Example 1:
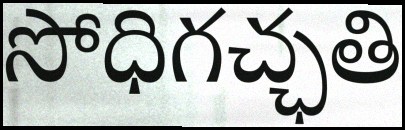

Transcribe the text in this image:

సోధిగచ్ఛతి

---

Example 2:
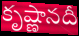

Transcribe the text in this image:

కృష్ణానదీ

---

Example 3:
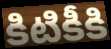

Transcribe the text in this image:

కిటికీకి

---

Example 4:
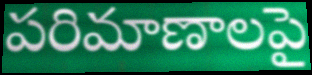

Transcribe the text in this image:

పరిమాణాలపై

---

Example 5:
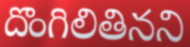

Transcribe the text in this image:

దొంగిలితినని